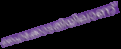
ഹൈക്കോടതിയിലാണ്